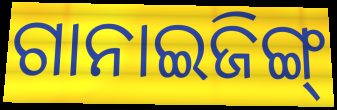
ଗାନାଇଜିଙ୍ଗ୍